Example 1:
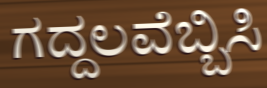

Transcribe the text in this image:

ಗದ್ದಲವೆಬ್ಬಿಸಿ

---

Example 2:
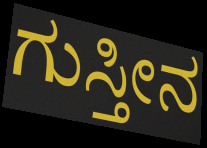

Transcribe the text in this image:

ಗುಸ್ತೀನ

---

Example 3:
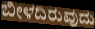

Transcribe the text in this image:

ಬೀಳದಿರುವುದು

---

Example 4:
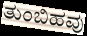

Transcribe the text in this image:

ತುಂಬಿಹವು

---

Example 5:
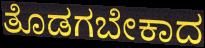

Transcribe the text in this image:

ತೊಡಗಬೇಕಾದ